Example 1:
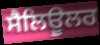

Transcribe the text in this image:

ਸੈਲਿਊਲਰ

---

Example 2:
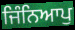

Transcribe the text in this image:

ਜਿੰਨਿਆਪੁ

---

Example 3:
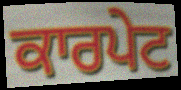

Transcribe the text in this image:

ਕਾਰਪੇਟ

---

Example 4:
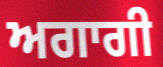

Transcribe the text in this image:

ਅਗਾਗੀ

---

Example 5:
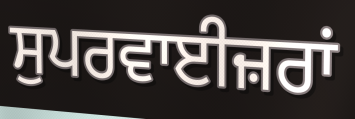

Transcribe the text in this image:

ਸੁਪਰਵਾਈਜ਼ਰਾਂ